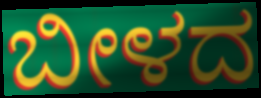
ಬೀಳದ